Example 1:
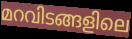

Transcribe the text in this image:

മറവിടങ്ങളിലെ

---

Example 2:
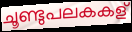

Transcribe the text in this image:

ചൂണ്ടുപലകകള്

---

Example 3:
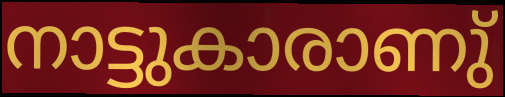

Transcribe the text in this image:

നാട്ടുകാരാണു്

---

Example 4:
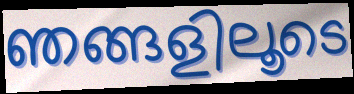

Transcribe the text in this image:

ഞങ്ങളിലൂടെ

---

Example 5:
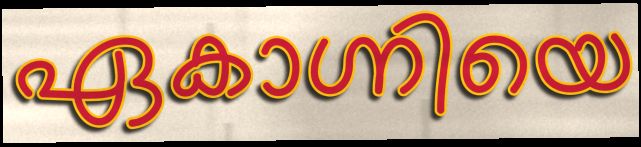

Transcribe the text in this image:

ഏകാഗ്നിയെ